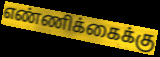
எண்ணிக்கைக்கு